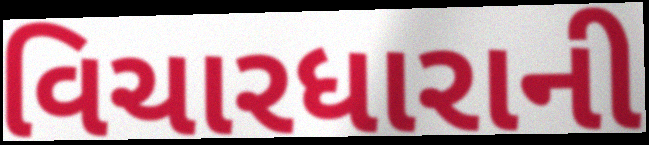
વિચારધારાની